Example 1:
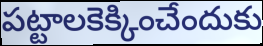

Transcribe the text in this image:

పట్టాలకెక్కించేందుకు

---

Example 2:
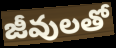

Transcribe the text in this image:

జీవులతో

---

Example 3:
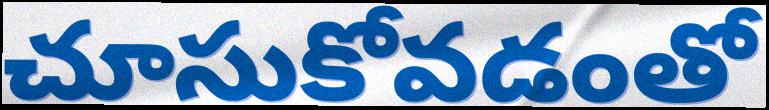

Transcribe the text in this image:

చూసుకోవడంతో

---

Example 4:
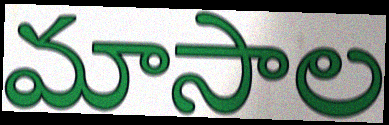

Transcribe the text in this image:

మాసాల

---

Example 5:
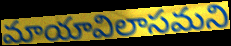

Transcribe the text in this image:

మాయావిలాసమని